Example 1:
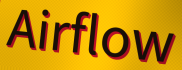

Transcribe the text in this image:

Airflow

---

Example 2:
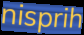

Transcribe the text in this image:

nisprih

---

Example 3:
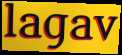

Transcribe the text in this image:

lagav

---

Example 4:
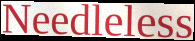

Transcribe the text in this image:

Needleless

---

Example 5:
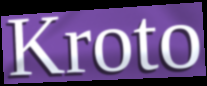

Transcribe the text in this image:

Kroto